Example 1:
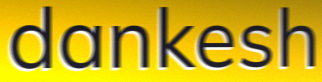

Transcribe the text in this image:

dankesh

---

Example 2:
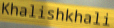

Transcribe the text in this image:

Khalishkhali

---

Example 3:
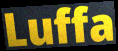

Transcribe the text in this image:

Luffa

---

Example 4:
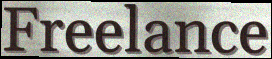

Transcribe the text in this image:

Freelance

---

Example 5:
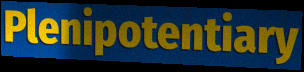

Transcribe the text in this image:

Plenipotentiary